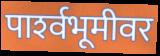
पार्श्‍वभूमीवर